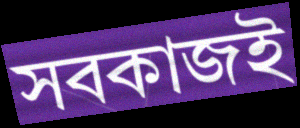
সবকাজই